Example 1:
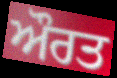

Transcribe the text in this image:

ਔਰਤ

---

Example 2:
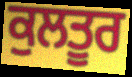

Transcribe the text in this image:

ਕੁਲਤੂਰ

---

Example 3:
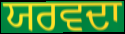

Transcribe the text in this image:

ਯਰਵਦਾ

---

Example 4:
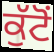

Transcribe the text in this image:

ਕੁੱਟੋਂ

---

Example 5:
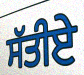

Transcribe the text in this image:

ਸੱਤੀਏ